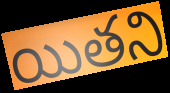
యితని